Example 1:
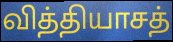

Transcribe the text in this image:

வித்தியாசத்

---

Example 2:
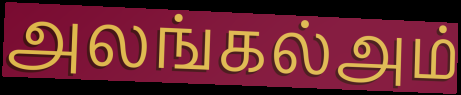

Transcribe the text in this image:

அலங்கல்அம்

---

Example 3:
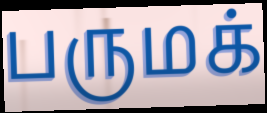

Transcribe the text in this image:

பருமக்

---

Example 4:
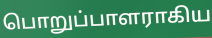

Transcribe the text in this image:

பொறுப்பாளராகிய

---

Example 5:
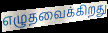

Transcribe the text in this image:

எழுதவைக்கிறது